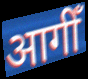
आगीँ